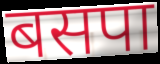
बसपा